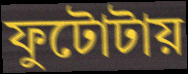
ফুটোটায়